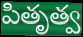
పితృత్వ